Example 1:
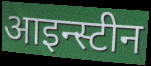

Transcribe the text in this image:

आइन्स्टीन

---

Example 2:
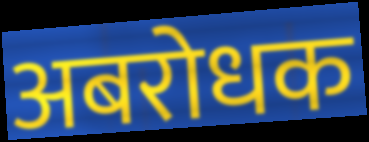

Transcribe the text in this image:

अबरोधक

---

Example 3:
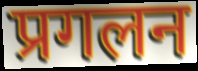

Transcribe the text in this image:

प्रगलन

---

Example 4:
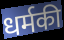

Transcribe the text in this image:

धर्मकी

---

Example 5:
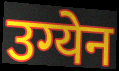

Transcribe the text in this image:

उग्येन